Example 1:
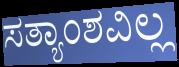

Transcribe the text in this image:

ಸತ್ಯಾಂಶವಿಲ್ಲ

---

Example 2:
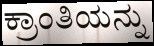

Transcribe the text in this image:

ಕ್ರಾಂತಿಯನ್ನು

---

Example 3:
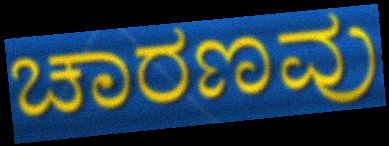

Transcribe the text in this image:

ಚಾರಣವು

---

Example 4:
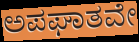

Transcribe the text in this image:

ಅಪಘಾತವೇ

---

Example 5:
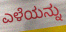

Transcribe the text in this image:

ಎಳೆಯನ್ನು